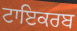
ਟਾਇਕਰਬ